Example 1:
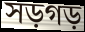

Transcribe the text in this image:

সড়গড়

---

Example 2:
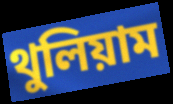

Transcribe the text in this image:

থুলিয়াম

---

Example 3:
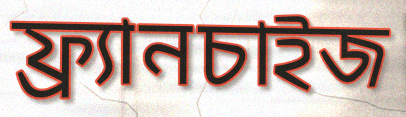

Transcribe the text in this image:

ফ্র্যানচাইজ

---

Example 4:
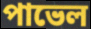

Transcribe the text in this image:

পাভেল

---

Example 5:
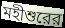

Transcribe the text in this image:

মহীশুরের